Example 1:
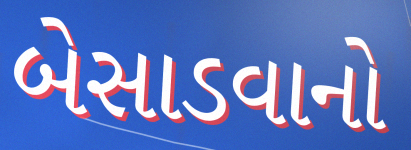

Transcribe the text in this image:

બેસાડવાનો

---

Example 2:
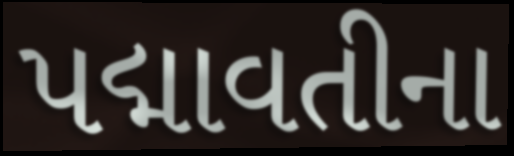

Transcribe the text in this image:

પદ્માવતીના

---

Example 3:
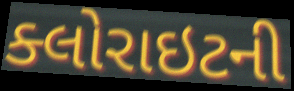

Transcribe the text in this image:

ક્લોરાઇટની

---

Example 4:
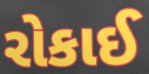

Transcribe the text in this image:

રોકાઈ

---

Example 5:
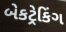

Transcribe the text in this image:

બેકટ્રેકિંગ